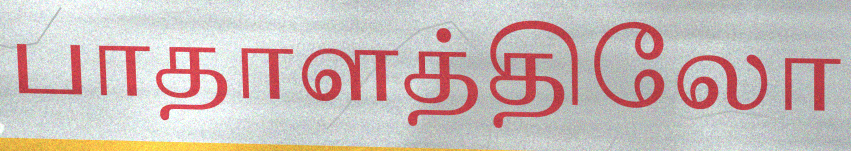
பாதாளத்திலோ